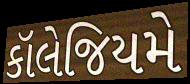
કૉલેજિયમે